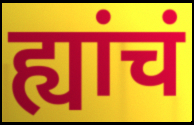
ह्यांचं